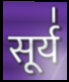
सूर्य॑